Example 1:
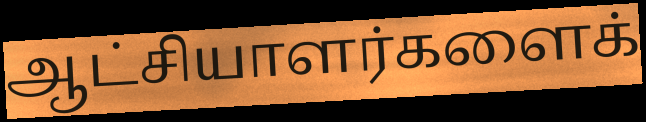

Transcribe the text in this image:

ஆட்சியாளர்களைக்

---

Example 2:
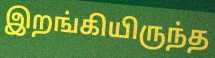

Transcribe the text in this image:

இறங்கியிருந்த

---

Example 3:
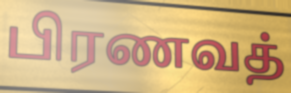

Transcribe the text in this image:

பிரணவத்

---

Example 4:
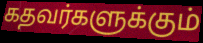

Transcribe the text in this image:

கதவர்களுக்கும்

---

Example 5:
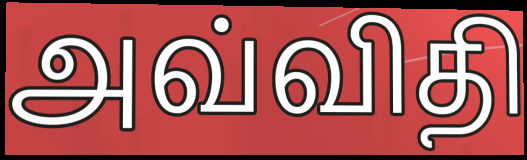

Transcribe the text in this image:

அவ்விதி